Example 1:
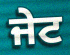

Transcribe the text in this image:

ਜੇਟ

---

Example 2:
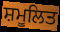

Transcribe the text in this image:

ਸ਼ਮੂਲਿਤ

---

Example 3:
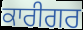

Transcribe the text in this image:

ਕਾਰੀਗਰ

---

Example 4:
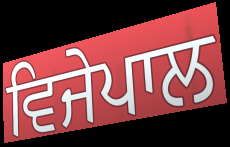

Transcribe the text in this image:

ਵਿਜੇਪਾਲ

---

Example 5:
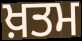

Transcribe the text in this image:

ਖ਼ਤਮ